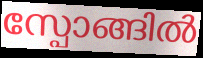
സ്പോങ്ങിൽ